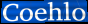
Coehlo